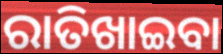
ରାତିଖାଇବା